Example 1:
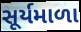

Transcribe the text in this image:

સૂર્યમાળા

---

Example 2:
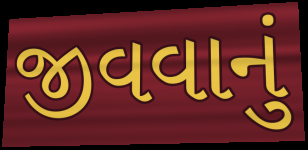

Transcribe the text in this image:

જીવવાનું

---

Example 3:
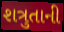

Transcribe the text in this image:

શત્રુતાની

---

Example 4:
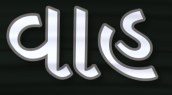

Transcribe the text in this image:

વાહ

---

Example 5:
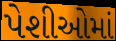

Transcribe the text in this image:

પેશીઓમાં